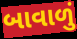
બાવાળું